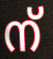
ന്